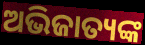
ଅଭିଜାତ୍ୟଙ୍କ